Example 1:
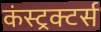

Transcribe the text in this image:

कंस्ट्रक्टर्स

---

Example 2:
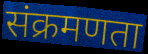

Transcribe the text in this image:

संक्रमणता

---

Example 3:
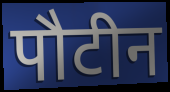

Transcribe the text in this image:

पौटीन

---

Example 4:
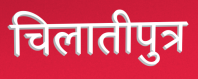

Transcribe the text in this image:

चिलातीपुत्र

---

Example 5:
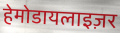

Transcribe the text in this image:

हेमोडायलाइज़र